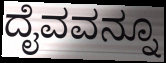
ದೈವವನ್ನೂ